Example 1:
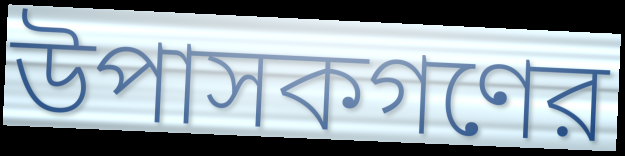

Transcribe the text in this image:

উপাসকগণের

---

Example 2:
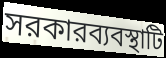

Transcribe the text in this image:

সরকারব্যবস্থাটি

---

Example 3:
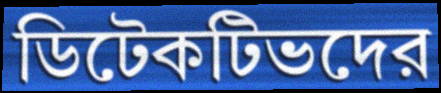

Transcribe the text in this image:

ডিটেকটিভদের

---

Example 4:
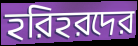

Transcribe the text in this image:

হরিহরদের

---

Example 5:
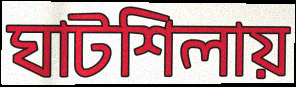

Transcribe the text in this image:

ঘাটশিলায়